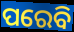
ପରେବି